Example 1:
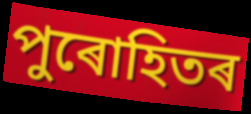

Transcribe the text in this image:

পুৰোহিতৰ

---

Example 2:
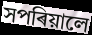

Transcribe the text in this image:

সপৰিয়ালে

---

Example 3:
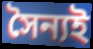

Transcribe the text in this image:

সৈন্যই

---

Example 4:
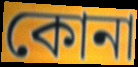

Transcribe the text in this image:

কোনা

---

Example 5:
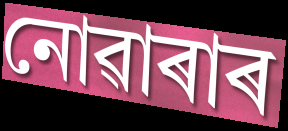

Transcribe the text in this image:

নোৱাৰাৰ